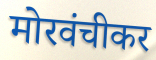
मोरवंचीकर